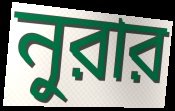
নুরার